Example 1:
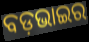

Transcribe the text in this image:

ବଡ଼ଭାଇର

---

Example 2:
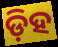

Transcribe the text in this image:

ଡ଼ିହ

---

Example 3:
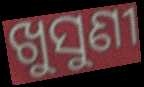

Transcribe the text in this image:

ଖୁସୁଣୀ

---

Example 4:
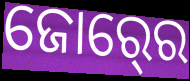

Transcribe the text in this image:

ଜୋର୍‍ରେ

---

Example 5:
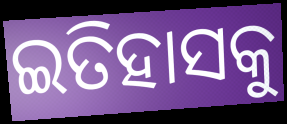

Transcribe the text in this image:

ଇତିହାସକୁ